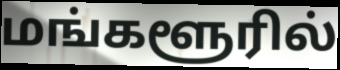
மங்களூரில்